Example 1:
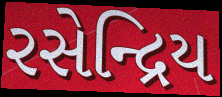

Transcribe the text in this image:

રસેન્દ્રિય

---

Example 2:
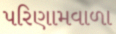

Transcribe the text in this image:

પરિણામવાળા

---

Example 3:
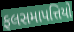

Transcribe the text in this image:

ફલસમાપત્તિયો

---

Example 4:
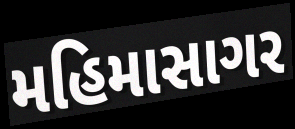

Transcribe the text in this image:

મહિમાસાગર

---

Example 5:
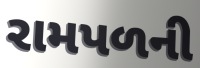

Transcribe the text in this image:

રામપળની